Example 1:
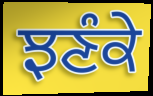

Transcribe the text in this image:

ਝਣੰਕੇ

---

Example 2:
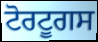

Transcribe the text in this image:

ਟੋਰਟੂਗਸ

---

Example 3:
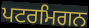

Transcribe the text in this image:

ਪਟਰਮਿਗਨ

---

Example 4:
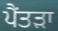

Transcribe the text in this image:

ਪੈਂਤੜਾ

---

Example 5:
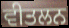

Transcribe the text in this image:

ਵੀਤਲਨ